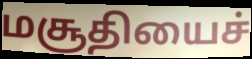
மசூதியைச்